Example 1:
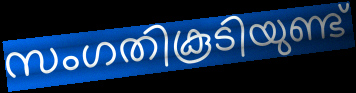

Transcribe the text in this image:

സംഗതികൂടിയുണ്ട്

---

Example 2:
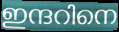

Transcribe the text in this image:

ഇന്ദറിനെ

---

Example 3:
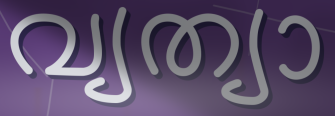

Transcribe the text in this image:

വ്യത്യാ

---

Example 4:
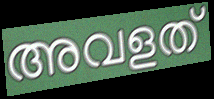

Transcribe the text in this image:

അവളത്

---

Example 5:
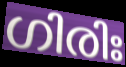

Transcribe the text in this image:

ഗിരിഃ